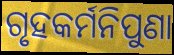
ଗୃହକର୍ମନିପୁଣା